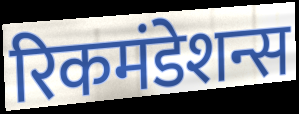
रिकमंडेशन्स